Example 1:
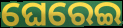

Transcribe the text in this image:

ଘେରେଇ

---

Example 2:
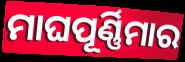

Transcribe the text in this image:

ମାଘପୂର୍ଣ୍ଣିମାର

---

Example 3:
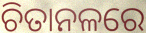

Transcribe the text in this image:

ଚିତାନଳରେ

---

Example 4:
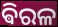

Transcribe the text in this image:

ଵିରଳ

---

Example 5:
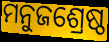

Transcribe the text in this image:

ମନୁଜଶ୍ରେଷ୍ଠ